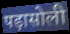
पड़ासोली